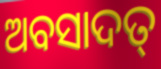
ଅବସାଦତ୍